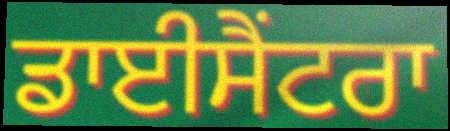
ਡਾਈਸੈਂਟਰਾ